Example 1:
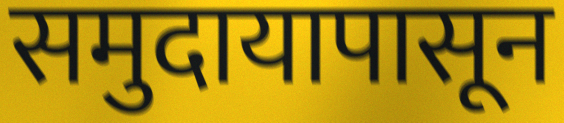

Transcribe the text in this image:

समुदायापासून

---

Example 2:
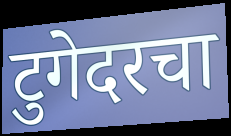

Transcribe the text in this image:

टुगेदरचा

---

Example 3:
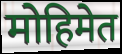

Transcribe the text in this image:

मोहिमेत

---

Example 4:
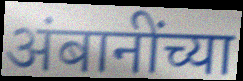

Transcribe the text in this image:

अंबानींच्या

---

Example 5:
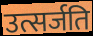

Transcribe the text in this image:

उत्सर्जति